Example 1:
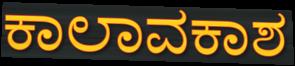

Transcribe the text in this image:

ಕಾಲಾವಕಾಶ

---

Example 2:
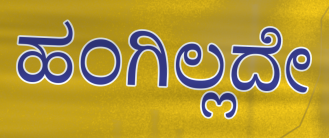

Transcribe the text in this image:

ಹಂಗಿಲ್ಲದೇ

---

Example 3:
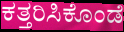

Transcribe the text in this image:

ಕತ್ತರಿಸಿಕೊಂಡೆ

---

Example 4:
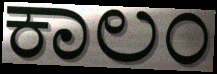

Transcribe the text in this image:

ಕಾಲಂ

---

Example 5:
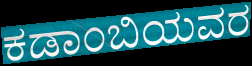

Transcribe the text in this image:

ಕಡಾಂಬಿಯವರ